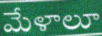
మేళాలూ